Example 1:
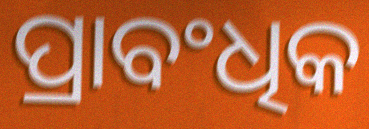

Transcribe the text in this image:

ପ୍ରାବଂଧିକ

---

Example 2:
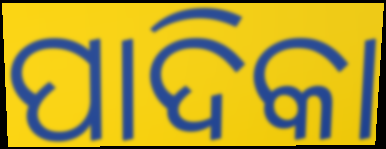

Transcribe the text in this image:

ପାଦିକା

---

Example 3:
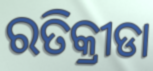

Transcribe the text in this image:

ରତିକ୍ରୀଡା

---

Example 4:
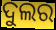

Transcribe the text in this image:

ଦୁଲର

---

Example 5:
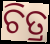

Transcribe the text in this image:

ଚିତ୍ର